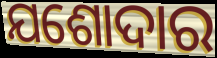
ଯଶୋଦାର